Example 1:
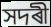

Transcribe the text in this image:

সদৰী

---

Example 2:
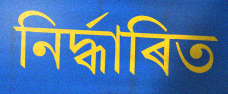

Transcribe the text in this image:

নিৰ্দ্ধাৰিত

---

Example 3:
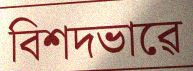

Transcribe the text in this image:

বিশদভাৱে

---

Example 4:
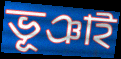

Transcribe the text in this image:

ভূঞাই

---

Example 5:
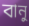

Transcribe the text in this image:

বানু